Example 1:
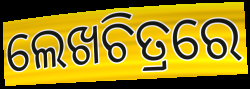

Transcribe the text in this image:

ଲେଖଚିତ୍ରରେ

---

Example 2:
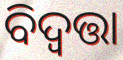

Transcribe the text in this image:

ବିଦ୍ୱତ୍ତା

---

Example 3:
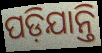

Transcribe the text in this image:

ପଡ଼ିଯାନ୍ତି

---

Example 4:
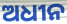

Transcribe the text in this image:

ଅଧୀନ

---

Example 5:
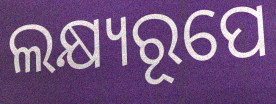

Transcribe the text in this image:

ଲକ୍ଷ୍ୟରୂପେ